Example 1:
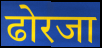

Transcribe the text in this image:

ढोरजा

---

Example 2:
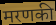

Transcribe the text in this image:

मरणकी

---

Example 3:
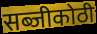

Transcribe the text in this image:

सब्जीकोठी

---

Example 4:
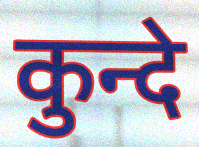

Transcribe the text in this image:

कुन्दे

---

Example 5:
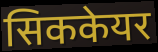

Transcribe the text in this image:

सिककेयर